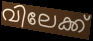
വിലേക്ക്